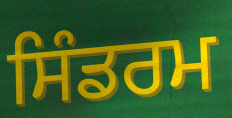
ਸਿੰਡਰਮ